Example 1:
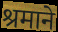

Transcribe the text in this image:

श्रमाने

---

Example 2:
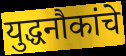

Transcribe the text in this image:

युद्धनौकांचे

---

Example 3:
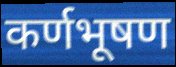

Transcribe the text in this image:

कर्णभूषण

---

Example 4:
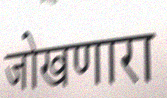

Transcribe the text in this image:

जोखणारा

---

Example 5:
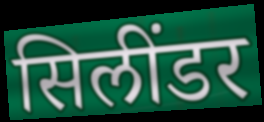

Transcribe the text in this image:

सिलींडर